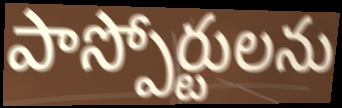
పాస్పోర్టులను